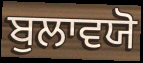
ਬੁਲਾਵਯੋ